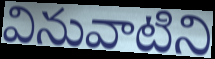
వినువాటిని